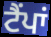
ਟੈਂਪਾਂ